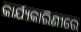
କାର୍ଯ୍ୟକାରିଣୀରେ